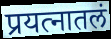
प्रयत्नातलं